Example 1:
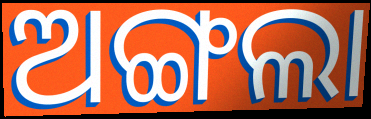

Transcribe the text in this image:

ଅଙ୍ଗଲା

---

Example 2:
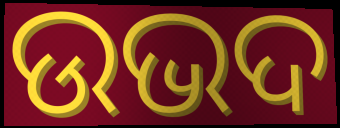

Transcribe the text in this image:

ଉଭଦ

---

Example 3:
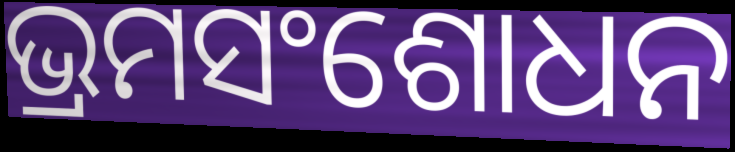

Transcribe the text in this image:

ଭ୍ରମସଂଶୋଧନ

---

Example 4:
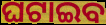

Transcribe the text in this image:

ଘଟାଇବ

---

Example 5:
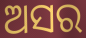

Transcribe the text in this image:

ଅସର